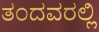
ತಂದವರಲ್ಲಿ